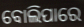
ବୋଲିପାରେ